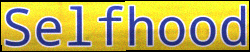
Selfhood